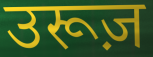
उरूज़